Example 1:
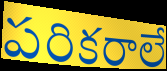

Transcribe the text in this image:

పరికరాలే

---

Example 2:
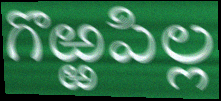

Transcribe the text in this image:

గొఱ్ఱపిల్ల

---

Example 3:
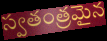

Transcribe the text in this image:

స్వతంత్రమైన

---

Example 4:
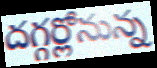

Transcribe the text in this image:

దగ్గర్లోనున్న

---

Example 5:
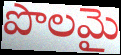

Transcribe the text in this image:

పొలమై